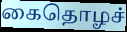
கைதொழச்